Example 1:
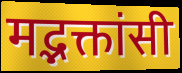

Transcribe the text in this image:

मद्भक्तांसी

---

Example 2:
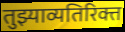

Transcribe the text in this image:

तुझ्याव्यतिरिक्त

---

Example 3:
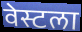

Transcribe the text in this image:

वेस्टला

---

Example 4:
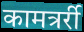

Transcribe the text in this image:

कामत्रर्री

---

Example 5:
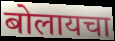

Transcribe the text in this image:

बोलायचा